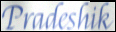
Pradeshik